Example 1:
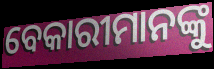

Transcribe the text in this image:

ବେକାରୀମାନଙ୍କୁ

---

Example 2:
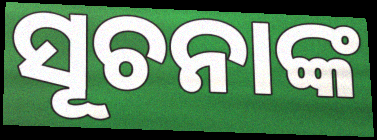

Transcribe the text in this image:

ସୂଚନାଙ୍କ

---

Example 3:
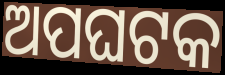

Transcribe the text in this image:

ଅପଘଟକ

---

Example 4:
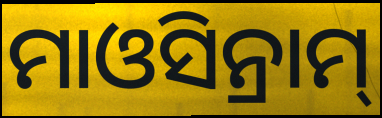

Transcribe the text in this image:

ମାଓସିନ୍ରାମ୍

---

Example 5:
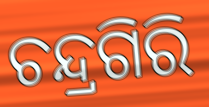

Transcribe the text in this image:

ଚନ୍ଦ୍ରଗିରି